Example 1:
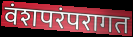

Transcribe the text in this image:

वंशपरंपरागत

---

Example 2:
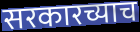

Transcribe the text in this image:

सरकारच्याच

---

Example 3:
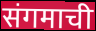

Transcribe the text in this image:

संगमाची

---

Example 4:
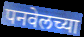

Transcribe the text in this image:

पनवेलच्या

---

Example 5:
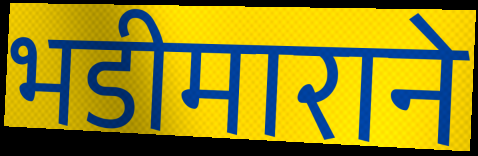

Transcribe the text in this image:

भडीमाराने